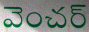
వెంచర్